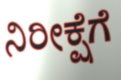
ನಿರೀಕ್ಷೆಗೆ